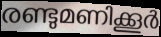
രണ്ടുമണിക്കൂർ